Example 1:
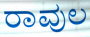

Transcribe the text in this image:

ರಾವುಲ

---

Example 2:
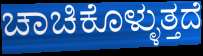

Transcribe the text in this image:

ಚಾಚಿಕೊಳ್ಳುತ್ತದೆ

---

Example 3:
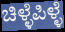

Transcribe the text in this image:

ಚಿಳ್ಳೆಪಿಳ್ಳೆ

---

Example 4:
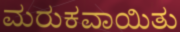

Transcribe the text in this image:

ಮರುಕವಾಯಿತು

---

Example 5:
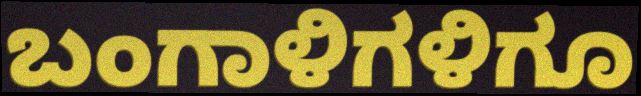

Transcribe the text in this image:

ಬಂಗಾಳಿಗಳಿಗೂ